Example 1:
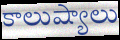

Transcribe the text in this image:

కాలుష్యాలు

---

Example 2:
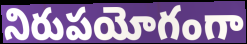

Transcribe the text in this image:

నిరుపయోగంగా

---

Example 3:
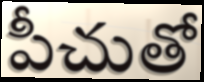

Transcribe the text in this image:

పీచుతో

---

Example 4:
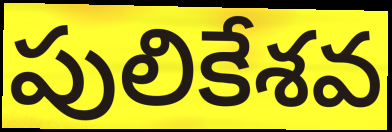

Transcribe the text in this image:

పులికేశవ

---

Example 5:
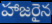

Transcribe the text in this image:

హాజరైన